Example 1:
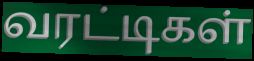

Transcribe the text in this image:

வரட்டிகள்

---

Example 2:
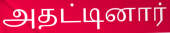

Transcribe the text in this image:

அதட்டினார்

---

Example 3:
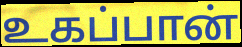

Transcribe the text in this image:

உகப்பான்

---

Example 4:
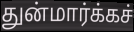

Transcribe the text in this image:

துன்மார்க்கச்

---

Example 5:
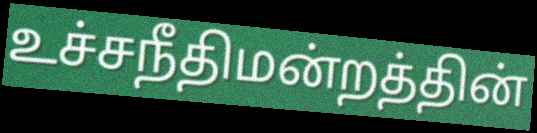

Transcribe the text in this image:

உச்சநீதிமன்றத்தின்